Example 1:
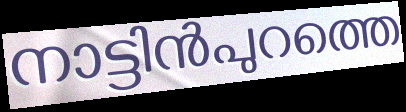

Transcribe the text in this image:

നാട്ടിൻപുറത്തെ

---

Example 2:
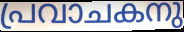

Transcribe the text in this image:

പ്രവാചകനു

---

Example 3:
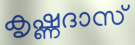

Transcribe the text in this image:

കൃഷ്ണദാസ്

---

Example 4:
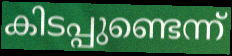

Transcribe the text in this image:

കിടപ്പുണ്ടെന്ന്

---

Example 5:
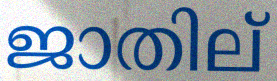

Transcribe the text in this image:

ജാതില്